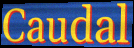
Caudal